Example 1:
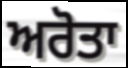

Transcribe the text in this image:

ਅਰੋਤਾ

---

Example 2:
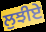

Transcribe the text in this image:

ਲੁਝੀਏ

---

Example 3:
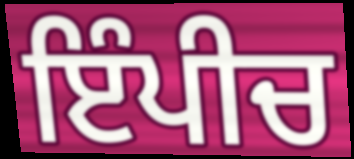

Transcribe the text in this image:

ਇੰਪੀਚ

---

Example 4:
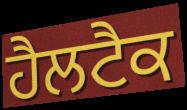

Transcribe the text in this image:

ਹੈਲਟੈਕ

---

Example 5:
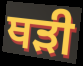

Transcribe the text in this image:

ਥੜੀ